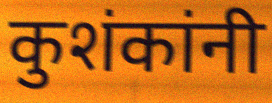
कुशंकांनी